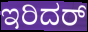
ಇರಿದರ್